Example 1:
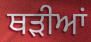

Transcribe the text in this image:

ਥੜੀਆਂ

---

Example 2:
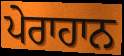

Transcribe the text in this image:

ਪੇਰਾਹਾਨ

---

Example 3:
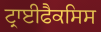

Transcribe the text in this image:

ਟ੍ਰਾਈਫੈਕਸਿਸ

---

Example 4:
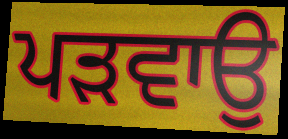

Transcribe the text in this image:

ਪੜਵਾਉ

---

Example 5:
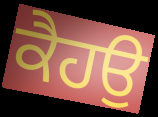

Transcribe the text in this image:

ਕੈਹਉ